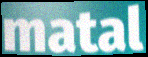
matal